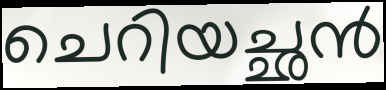
ചെറിയച്ഛൻ